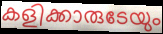
കളിക്കാരുടേയും